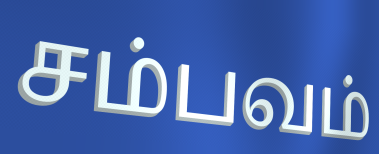
சம்பவம்